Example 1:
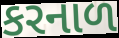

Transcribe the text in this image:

કરનાળ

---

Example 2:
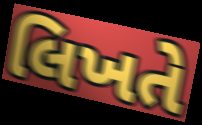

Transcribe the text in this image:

લિખતે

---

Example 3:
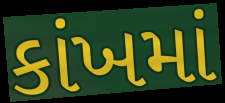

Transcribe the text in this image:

કાંખમાં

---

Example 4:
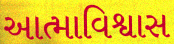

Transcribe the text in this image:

આત્માવિશ્વાસ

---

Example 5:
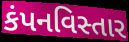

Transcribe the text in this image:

કંપનવિસ્તાર